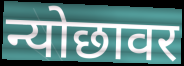
न्योछावर